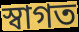
স্বাগত